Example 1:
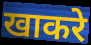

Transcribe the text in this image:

खाकरे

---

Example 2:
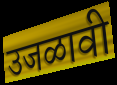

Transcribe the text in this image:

उजळावी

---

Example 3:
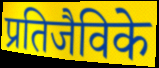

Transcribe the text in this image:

प्रतिजैविके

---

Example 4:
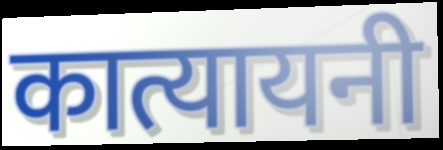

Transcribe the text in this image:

कात्यायनी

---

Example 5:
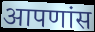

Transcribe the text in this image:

आपणांस